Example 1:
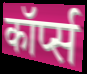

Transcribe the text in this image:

कॉर्प्स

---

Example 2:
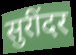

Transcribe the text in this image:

सुरींदर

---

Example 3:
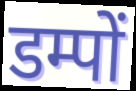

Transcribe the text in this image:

डम्पों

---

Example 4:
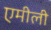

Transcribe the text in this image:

एमीली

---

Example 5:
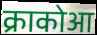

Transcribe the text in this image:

क्राकोआ